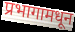
प्रभागामधून